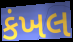
કંખલ